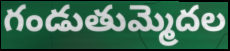
గండుతుమ్మెదల